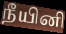
நீயினி